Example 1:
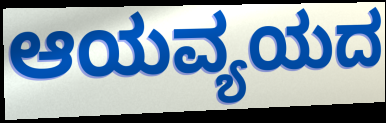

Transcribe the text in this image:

ಆಯವ್ಯಯದ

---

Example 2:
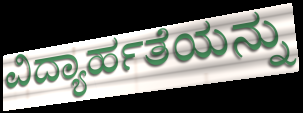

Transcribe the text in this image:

ವಿದ್ಯಾರ್ಹತೆಯನ್ನು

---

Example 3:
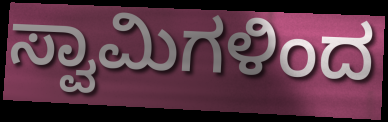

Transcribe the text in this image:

ಸ್ವಾಮಿಗಳಿಂದ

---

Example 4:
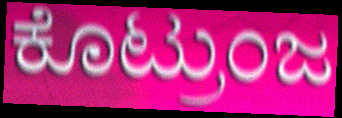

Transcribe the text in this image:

ಕೊಟ್ರುಂಜ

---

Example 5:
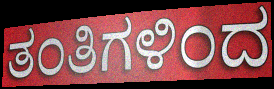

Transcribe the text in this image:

ತಂತಿಗಳಿಂದ